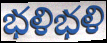
భళిభళి